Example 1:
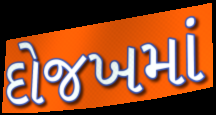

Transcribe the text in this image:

દોજખમાં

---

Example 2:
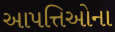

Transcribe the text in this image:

આપત્તિઓના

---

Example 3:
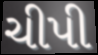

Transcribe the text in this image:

ચીપી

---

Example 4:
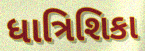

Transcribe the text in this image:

ધાત્રિશિકા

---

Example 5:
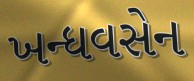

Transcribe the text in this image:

ખન્ધવસેન